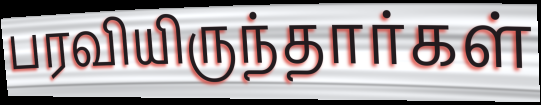
பரவியிருந்தார்கள்